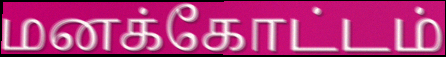
மனக்கோட்டம்